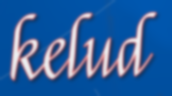
kelud